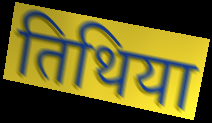
तिथिया